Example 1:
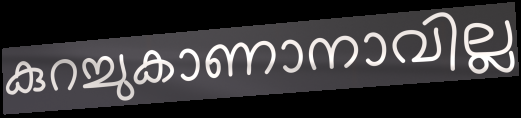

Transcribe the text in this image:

കുറച്ചുകാണാനാവില്ല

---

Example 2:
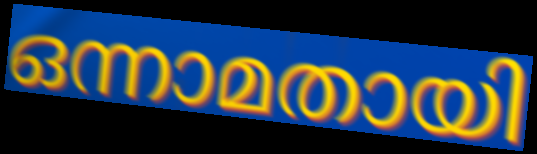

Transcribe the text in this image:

ഒന്നാമതായി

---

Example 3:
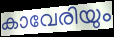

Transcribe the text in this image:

കാവേരിയും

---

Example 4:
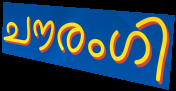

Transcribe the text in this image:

ചൗരംഗി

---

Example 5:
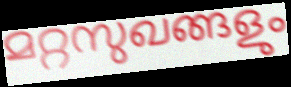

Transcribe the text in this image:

മറ്റസുഖങ്ങളും